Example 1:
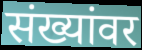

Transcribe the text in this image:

संख्यांवर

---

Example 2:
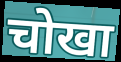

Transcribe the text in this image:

चोखा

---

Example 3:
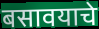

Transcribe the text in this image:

बसावयाचे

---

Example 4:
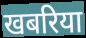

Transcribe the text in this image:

खबरिया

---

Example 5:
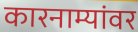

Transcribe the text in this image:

कारनाम्यांवर